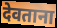
देवताना